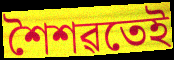
শৈশৱতেই